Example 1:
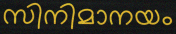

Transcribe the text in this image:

സിനിമാനയം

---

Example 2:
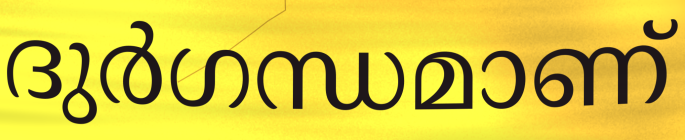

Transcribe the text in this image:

ദുർഗന്ധമാണ്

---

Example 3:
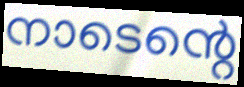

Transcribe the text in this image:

നാടെന്റെ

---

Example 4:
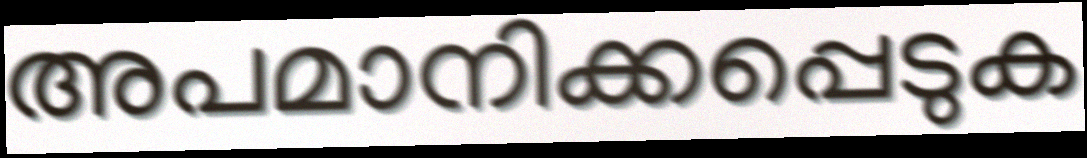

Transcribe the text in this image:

അപമാനിക്കപ്പെടുക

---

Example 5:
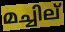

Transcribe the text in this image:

മച്ചില്